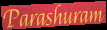
Parashuram